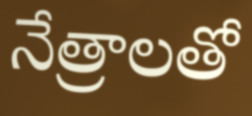
నేత్రాలతో